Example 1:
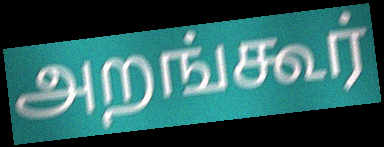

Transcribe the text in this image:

அறங்கூர்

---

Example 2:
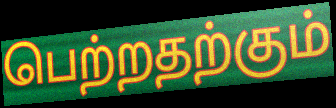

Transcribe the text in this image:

பெற்றதற்கும்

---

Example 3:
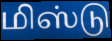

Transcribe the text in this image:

மிஸ்டு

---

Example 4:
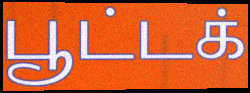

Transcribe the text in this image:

பூட்டக்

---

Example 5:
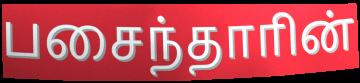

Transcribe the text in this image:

பசைந்தாரின்